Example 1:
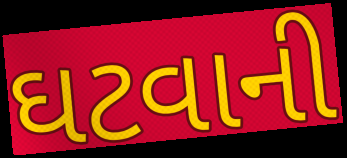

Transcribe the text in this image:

ઘટવાની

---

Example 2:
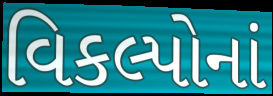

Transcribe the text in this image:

વિકલ્પોનાં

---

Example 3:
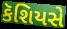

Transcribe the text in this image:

કૅશિયસે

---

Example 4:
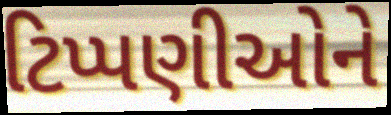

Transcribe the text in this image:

ટિપ્પણીઓને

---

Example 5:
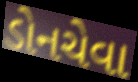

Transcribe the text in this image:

ડોનચેવા